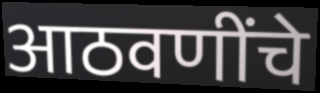
आठवणींचे